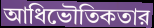
আধিভৌতিকতার